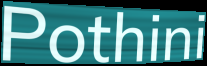
Pothini